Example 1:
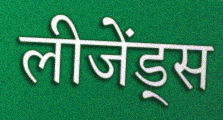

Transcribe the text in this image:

लीजेंड्स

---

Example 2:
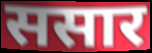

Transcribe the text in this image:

ससार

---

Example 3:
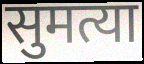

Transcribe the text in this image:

सुमत्या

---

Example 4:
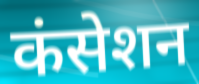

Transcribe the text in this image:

कंसेशन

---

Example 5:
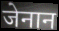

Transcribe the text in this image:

जेनान